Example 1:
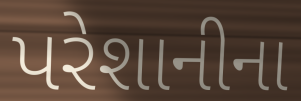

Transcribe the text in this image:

પરેશાનીના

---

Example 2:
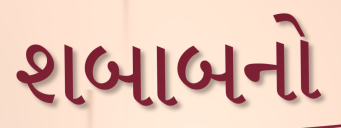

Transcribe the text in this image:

શબાબનો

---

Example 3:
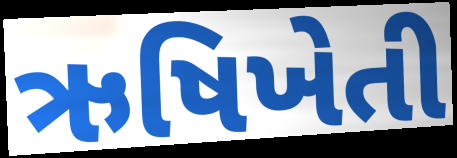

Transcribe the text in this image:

ઋષિખેતી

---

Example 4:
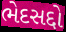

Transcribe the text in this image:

ભેદસદ્દો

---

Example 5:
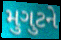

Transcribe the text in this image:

મુગુટને